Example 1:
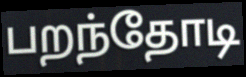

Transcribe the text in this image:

பறந்தோடி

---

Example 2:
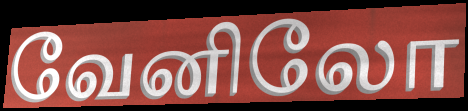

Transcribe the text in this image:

வேனிலோ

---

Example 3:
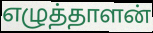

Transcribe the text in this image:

எழுத்தாளன்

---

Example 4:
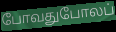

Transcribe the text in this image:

போவதுபோலப்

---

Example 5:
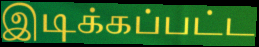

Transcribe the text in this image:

இடிக்கப்பட்ட